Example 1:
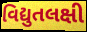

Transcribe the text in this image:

વિદ્યુતલક્ષી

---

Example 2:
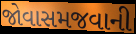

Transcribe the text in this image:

જોવાસમજવાની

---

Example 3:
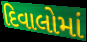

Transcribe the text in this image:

દિવાલોમાં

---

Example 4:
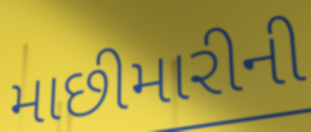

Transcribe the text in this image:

માછીમારીની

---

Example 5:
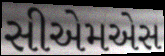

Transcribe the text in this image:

સીએમએસ